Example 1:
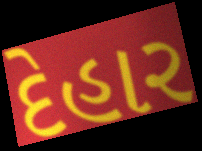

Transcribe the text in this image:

દેહાર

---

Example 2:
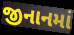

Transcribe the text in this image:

જીનાનમાં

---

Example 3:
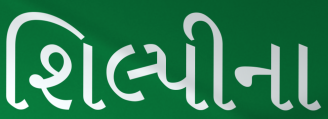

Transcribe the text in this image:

શિલ્પીના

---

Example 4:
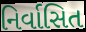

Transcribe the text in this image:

નિર્વાસિત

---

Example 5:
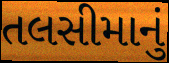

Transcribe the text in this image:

તલસીમાનું